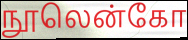
நூலென்கோ